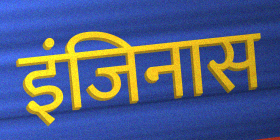
इंजिनास